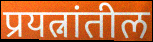
प्रयत्नांतील